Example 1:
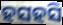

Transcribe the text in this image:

ହସହସି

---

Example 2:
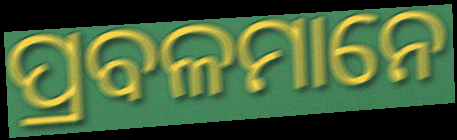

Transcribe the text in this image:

ପ୍ରବଳମାନେ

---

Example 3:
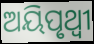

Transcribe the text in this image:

ଅୟିପୃଥ୍ୱୀ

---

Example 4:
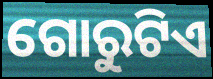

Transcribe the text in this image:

ଗୋରୁଟିଏ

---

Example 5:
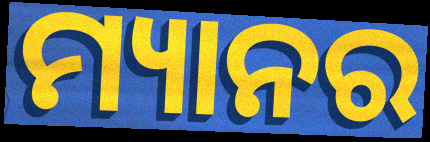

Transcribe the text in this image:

ମ୍ୟାନର